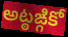
అట్ఠఙ్గికో